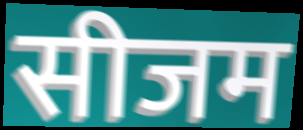
सीजम